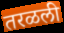
तरळली